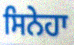
ਸਿਨੇਹਾ